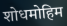
शोधमोहिम